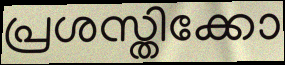
പ്രശസ്തിക്കോ